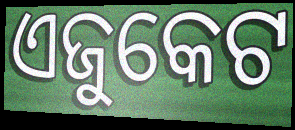
ଏଜୁକେଟ